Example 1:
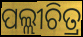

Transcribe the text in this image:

ପଲ୍ଲୀଚିତ୍ର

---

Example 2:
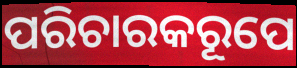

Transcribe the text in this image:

ପରିଚାରକରୂପେ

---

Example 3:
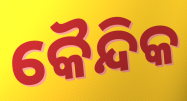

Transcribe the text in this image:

କୈନ୍ଦିକ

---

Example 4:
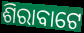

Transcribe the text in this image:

ଶିରାବାଟେ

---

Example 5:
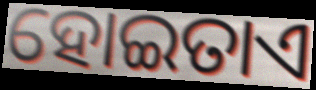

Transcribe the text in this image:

ହୋଇତାଏ